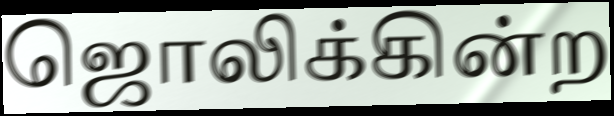
ஜொலிக்கின்ற